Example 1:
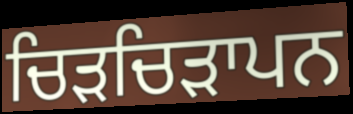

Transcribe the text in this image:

ਚਿੜਚਿੜਾਪਨ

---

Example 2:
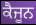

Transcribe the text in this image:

ਕੈਜੂਨ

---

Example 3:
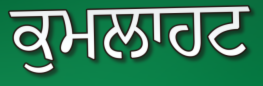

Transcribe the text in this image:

ਕੁਮਲਾਹਟ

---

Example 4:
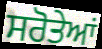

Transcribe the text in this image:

ਸਰੋਤੇਆਂ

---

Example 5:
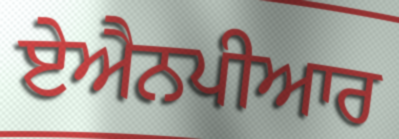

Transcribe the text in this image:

ਏਐਨਪੀਆਰ